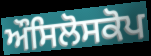
ਔਸਿਲੋਸਕੋਪ